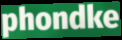
phondke